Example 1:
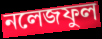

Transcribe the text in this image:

নলেজফুল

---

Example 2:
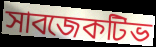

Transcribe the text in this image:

সাবজেকটিভ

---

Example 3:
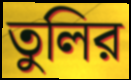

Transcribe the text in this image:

তুলির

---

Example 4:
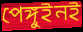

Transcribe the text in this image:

পেঙ্গুইনই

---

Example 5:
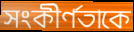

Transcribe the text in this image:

সংকীর্ণতাকে